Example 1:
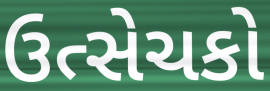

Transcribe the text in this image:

ઉત્સેચકો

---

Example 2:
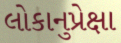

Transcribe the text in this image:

લોકાનુપ્રેક્ષા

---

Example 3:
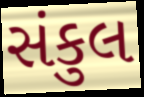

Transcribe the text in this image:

સંકુલ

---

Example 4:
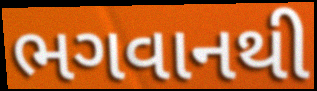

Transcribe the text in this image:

ભગવાનથી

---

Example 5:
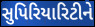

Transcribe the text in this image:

સુપિરિયારિટીને